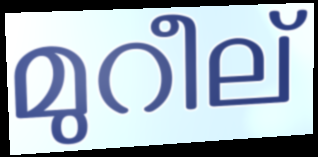
മുറീല്